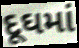
દૂઘમાં